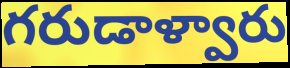
గరుడాళ్వారు